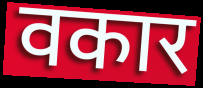
वकार